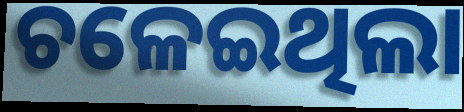
ଚଳେଇଥିଲା